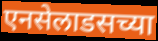
एनसेलाडसच्या